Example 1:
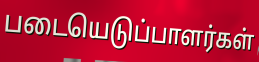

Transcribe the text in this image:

படையெடுப்பாளர்கள்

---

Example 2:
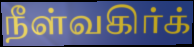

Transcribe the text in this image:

நீள்வகிர்க்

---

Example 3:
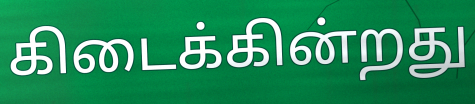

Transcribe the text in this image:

கிடைக்கின்றது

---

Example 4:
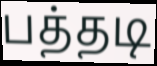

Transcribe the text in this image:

பத்தடி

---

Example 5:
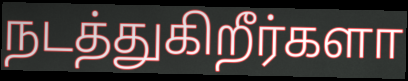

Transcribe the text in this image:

நடத்துகிறீர்களா